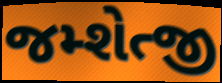
જમ્શેત્જી